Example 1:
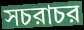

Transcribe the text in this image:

সচরাচর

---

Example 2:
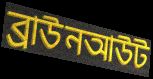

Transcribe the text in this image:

ব্রাউনআউট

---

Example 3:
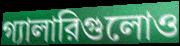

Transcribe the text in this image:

গ্যালারিগুলোও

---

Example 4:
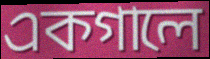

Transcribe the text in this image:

একগালে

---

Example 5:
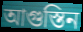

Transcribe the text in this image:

আগুস্তিন